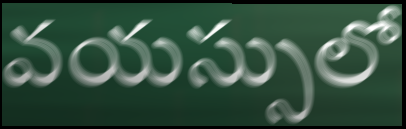
వయస్సులో